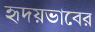
হৃদয়ভাবের